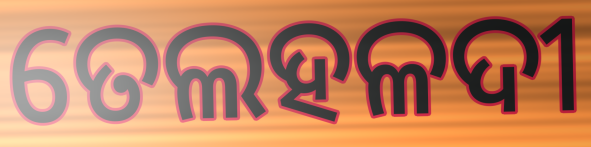
ତେଲହଳଦୀ